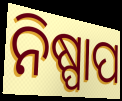
ନିଷ୍ପାପ